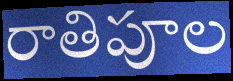
రాతిపూల